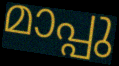
മാപ്പു